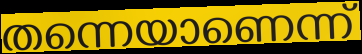
തന്നെയാണെന്ന്